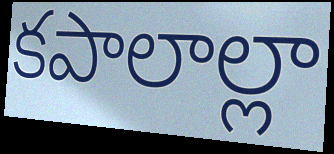
కపాలాల్లా